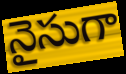
నైసుగా